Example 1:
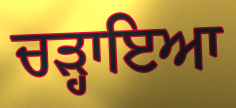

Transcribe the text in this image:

ਚੜ੍ਹਾਇਆ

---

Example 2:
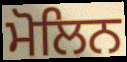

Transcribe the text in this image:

ਮੋਲਿਨ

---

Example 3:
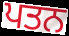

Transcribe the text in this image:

ਪਤਨ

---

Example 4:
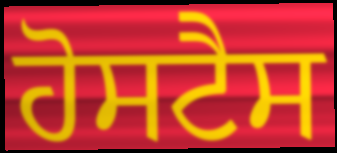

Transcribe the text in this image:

ਹੋਸਟੈਸ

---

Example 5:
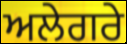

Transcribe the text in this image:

ਅਲੇਗਰੇ